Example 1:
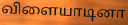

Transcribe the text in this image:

விளையாடினா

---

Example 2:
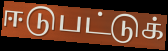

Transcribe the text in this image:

ஈடுபட்டுக்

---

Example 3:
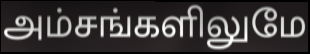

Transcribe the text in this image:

அம்சங்களிலுமே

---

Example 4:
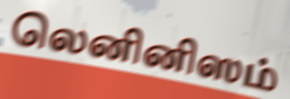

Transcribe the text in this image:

லெனினிஸம்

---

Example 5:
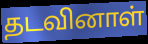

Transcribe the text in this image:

தடவினாள்